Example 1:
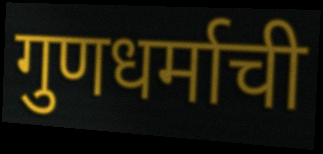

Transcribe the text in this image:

गुणधर्माची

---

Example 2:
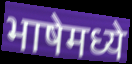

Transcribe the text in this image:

भाषेमध्ये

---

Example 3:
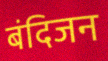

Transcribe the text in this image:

बंदिजन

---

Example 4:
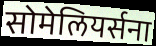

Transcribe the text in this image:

सोमेलियर्सना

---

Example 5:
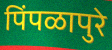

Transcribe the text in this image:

पिंपळापुरे